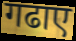
गढाए